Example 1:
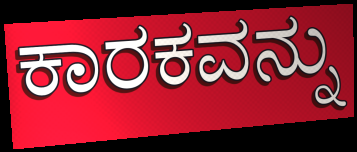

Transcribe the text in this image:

ಕಾರಕವನ್ನು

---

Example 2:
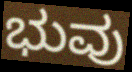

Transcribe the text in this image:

ಭುವು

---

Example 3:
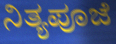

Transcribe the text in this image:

ನಿತ್ಯಪೂಜೆ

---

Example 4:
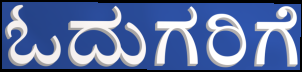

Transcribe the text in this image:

ಓದುಗರಿಗೆ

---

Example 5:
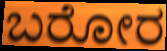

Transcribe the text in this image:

ಬರೋರ